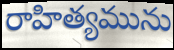
రాహిత్యమును